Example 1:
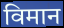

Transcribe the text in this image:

विमान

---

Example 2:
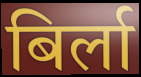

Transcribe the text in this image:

बिर्ला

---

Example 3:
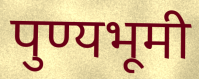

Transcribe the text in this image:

पुण्यभूमी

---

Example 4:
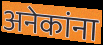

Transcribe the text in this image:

अनेकांना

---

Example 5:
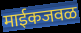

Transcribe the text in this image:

माईकजवळ